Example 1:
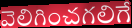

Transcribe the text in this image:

వెలిగించగలిగే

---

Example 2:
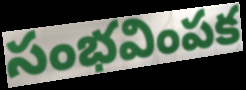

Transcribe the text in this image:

సంభవింపక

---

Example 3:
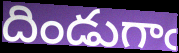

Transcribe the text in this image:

దిండుగాఁ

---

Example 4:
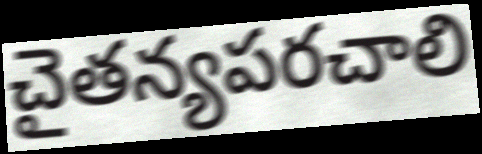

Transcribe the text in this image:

చైతన్యపరచాలి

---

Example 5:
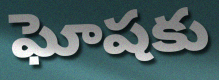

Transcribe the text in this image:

ఘోషకు